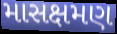
માસક્ષમણ